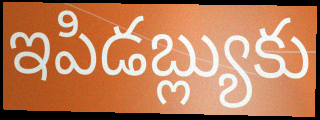
ఇపిడబ్ల్యుకు